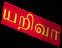
யறிவா